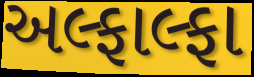
અલ્ફાલ્ફા